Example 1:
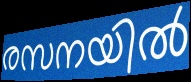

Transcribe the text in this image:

രസനയിൽ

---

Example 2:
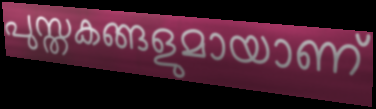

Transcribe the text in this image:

പുസ്തകങ്ങളുമായാണ്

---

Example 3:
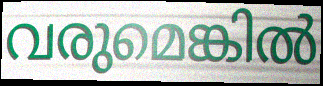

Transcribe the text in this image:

വരുമെങ്കിൽ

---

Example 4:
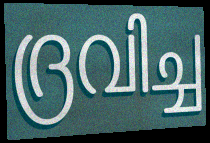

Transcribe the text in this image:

ദ്രവിച്ച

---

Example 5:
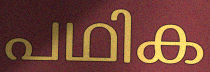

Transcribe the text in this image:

പഥിക